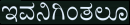
ಇವನಿಗಿಂತಲೂ